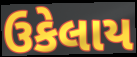
ઉકેલાય